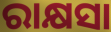
ରାକ୍ଷସା